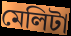
মেলিটা